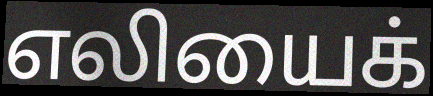
எலியைக்